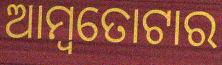
ଆମ୍ବତୋଟାର